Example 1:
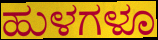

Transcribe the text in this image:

ಹುಳಗಳೂ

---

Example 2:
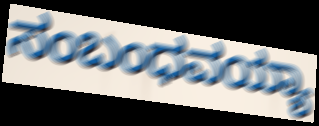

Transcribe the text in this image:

ಸಂಬಂಧವಯ್ಯಾ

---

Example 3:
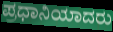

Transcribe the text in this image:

ಪ್ರಧಾನಿಯಾದರು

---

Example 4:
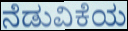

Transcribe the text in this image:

ನೆಡುವಿಕೆಯ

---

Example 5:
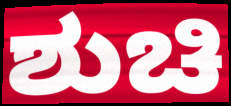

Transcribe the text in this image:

ಶುಚಿ